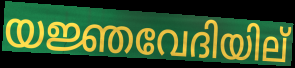
യജ്ഞവേദിയില്